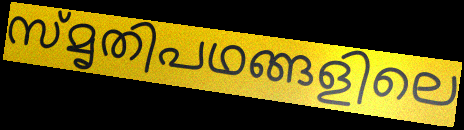
സ്മൃതിപഥങ്ങളിലെ